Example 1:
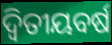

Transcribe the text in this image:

ଦ୍ୱିତୀୟବର୍ଷ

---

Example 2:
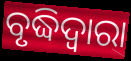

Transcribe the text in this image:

ବୃଦ୍ଧିଦ୍ୱାରା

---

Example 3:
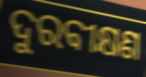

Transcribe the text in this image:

ଦୁରବୀକ୍ଷଣ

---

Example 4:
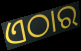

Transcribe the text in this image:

ଏଠାର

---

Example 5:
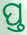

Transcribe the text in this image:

ପ୍ତ